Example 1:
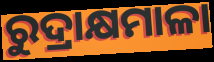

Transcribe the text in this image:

ରୁଦ୍ରାକ୍ଷମାଳା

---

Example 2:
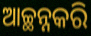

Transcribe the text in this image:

ଆଚ୍ଛନ୍ନକରି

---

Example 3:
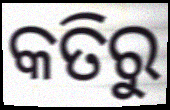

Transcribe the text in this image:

କତିରୁ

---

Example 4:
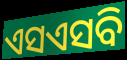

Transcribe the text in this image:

ଏସଏସବି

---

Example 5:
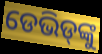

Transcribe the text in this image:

ଡେଭିଡ୍‌ଙ୍କୁ